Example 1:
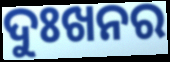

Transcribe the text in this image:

ଦୁଃଖନର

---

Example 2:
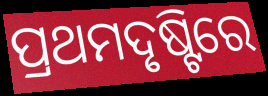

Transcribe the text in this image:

ପ୍ରଥମଦୃଷ୍ଟିରେ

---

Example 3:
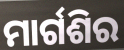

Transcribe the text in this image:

ମାର୍ଗଶିର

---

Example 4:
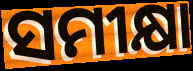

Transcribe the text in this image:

ସମୀକ୍ଷା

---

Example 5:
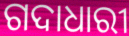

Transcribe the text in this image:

ଗଦାଧାରୀ